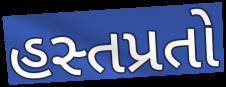
હસ્તપ્રતો